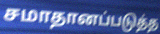
சமாதானப்படுத்த